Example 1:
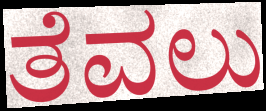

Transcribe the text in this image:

ತೆವಲು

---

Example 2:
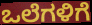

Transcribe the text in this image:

ಒಲೆಗಳಿಗೆ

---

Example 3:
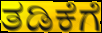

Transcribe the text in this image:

ತಡಿಕೆಗೆ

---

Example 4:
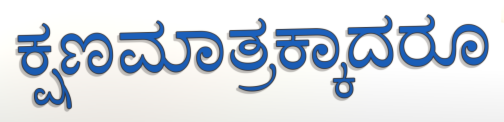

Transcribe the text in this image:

ಕ್ಷಣಮಾತ್ರಕ್ಕಾದರೂ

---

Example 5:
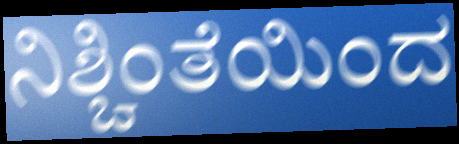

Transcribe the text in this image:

ನಿಶ್ಚಿಂತೆಯಿಂದ